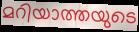
മറിയാത്തയുടെ